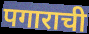
पगाराची